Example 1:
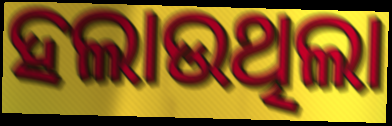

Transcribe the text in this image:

ହଲାଉଥିଲା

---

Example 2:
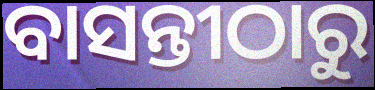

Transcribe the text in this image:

ବାସନ୍ତୀଠାରୁ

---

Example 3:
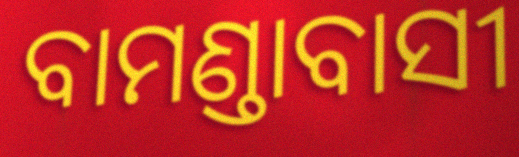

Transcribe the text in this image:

ବାମଣ୍ଡାବାସୀ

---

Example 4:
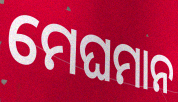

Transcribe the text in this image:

ମେଘମାନ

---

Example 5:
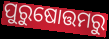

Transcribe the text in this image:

ପୁରୁଷୋତ୍ତମରୁ